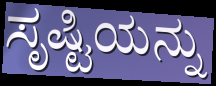
ಸೃಷ್ಟಿಯನ್ನು